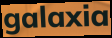
galaxia